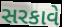
સરકાવે